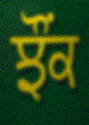
ਝੌਂਕ